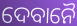
ଦେବାନୈ